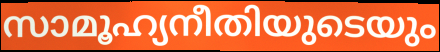
സാമൂഹ്യനീതിയുടെയും